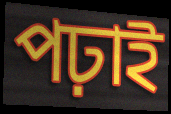
পঢ়াই